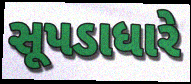
સૂપડાધારે